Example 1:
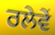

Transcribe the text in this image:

ਰਲੇਵੇਂ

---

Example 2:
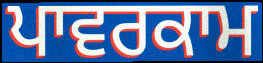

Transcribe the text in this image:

ਪਾਵਰਕਾਮ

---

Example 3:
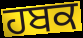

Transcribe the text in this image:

ਹਬਕ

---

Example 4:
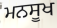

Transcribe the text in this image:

ਮਨਸੂਖ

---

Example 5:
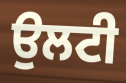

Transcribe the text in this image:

ਉਲਟੀ